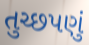
તુચ્છપણું